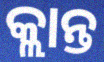
କ୍ଲାନ୍ତ